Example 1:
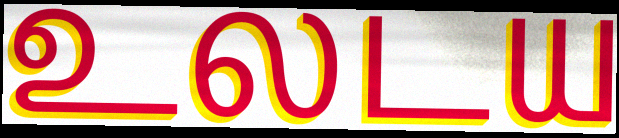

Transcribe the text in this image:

உலடய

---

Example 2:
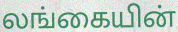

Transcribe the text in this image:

லங்கையின்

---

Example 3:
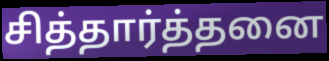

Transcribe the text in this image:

சித்தார்த்தனை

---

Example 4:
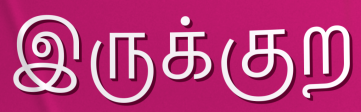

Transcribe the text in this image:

இருக்குற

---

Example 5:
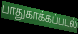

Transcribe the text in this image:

பாதுகாக்கப்படல்